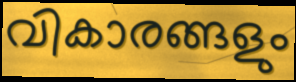
വികാരങ്ങളും